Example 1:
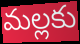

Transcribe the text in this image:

మల్లకు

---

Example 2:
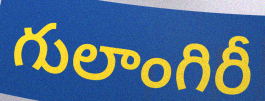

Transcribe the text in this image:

గులాంగిరీ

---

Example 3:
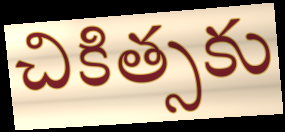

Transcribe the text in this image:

చికిత్సకు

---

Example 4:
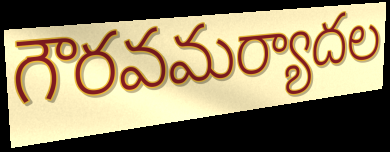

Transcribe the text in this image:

గౌరవమర్యాదల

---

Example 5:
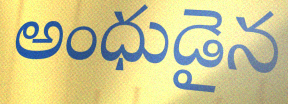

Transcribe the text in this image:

అంధుడైన